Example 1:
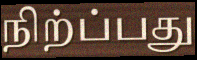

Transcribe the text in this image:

நிற்ப்பது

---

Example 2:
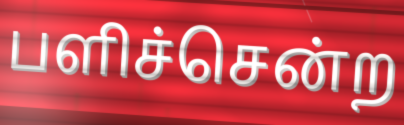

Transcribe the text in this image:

பளிச்சென்ற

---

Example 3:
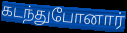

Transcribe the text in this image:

கடந்துபோனார்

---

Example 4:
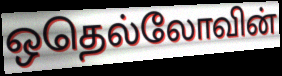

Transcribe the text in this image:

ஒதெல்லோவின்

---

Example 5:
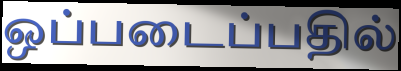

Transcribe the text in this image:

ஒப்படைப்பதில்